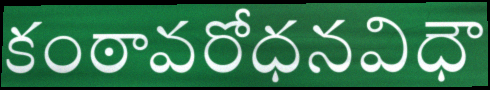
కంఠావరోధనవిధౌ